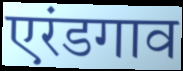
एरंडगाव